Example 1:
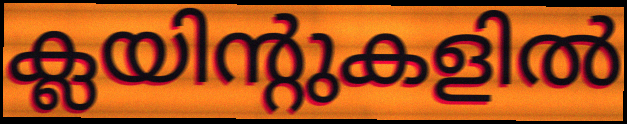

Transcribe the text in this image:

ക്ലയിന്റുകളിൽ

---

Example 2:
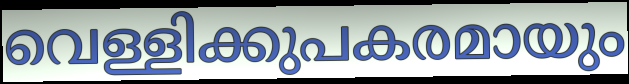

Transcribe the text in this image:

വെള്ളിക്കുപകരമായും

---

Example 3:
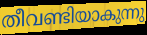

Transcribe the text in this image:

തീവണ്ടിയാകുന്നു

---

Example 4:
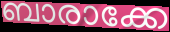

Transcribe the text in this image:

ബാരാക്കേ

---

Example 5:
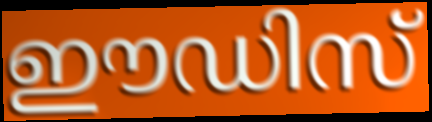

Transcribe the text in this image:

ഈഡിസ്